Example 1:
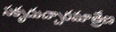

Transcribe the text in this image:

సకృదుచ్చారమాత్రేణ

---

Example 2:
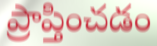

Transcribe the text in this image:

ప్రాప్తించడం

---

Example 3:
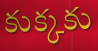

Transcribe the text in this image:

కుక్కకు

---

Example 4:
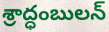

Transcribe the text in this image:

శ్రాద్ధంబులన్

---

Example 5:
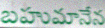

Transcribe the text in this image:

బహుమానేన